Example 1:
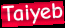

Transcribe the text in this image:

Taiyeb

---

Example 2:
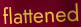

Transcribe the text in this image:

flattened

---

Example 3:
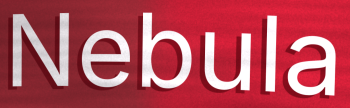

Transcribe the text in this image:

Nebula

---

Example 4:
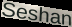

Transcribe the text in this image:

Seshan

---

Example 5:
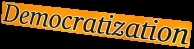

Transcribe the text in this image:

Democratization